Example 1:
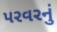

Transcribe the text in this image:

પરવરનું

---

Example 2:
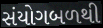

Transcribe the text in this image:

સંયોગબળથી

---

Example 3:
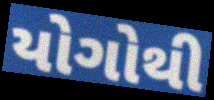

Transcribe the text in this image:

યોગોથી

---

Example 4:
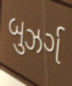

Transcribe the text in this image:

બુઝર્ગ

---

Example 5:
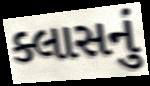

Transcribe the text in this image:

ક્લાસનું